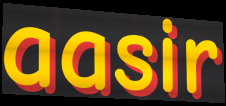
aasir